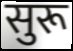
सुरू